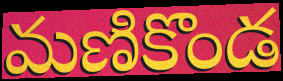
మణికొండ